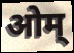
ओम्